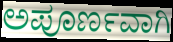
ಅಪೂರ್ಣವಾಗಿ